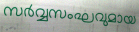
സർവ്വസംഘവുമായ